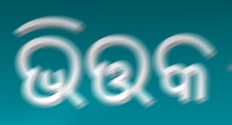
ଭିତ୍ତକ